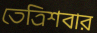
তেত্রিশবার